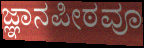
ಜ್ಞಾನಪೀಠವೂ